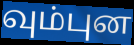
வும்புன